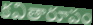
కవితారూపం